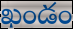
ఖండం